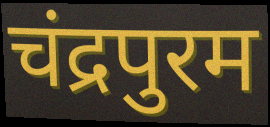
चंद्रपुरम